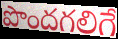
పొందగలిగే